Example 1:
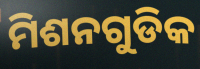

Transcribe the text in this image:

ମିଶନଗୁଡିକ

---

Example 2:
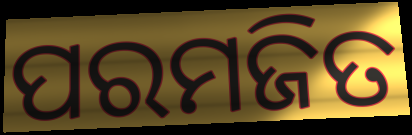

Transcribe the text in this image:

ପରମଜିତ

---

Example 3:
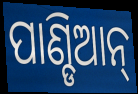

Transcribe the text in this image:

ପାଣ୍ଡିଆନ୍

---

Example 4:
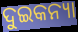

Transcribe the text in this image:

ଦୁଇକନ୍ୟା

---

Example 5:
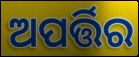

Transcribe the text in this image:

ଅପର୍ତ୍ତିର